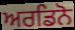
ਅਰਡਿਨੋ